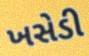
ખસેડી